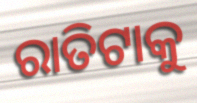
ରାତିଟାକୁ